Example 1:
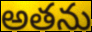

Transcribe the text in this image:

అతను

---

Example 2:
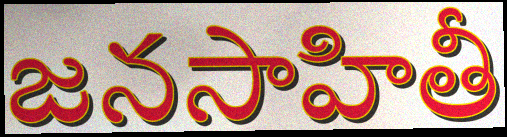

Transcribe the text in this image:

జనసాహితీ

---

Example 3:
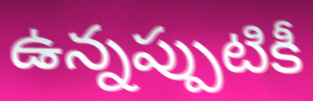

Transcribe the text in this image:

ఉన్నప్పుటికీ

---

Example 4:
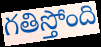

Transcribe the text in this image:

గతిస్తోంది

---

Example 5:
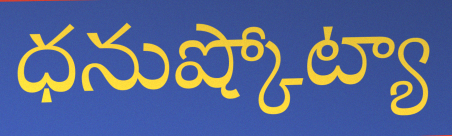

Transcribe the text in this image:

ధనుష్కోట్యా